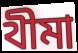
থীমা